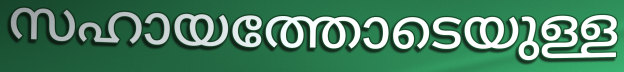
സഹായത്തോടെയുള്ള